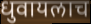
धुवायलाच